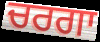
ਚਰਗਾ